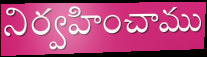
నిర్వహించాము